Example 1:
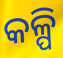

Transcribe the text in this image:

କଳ୍ପି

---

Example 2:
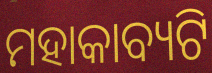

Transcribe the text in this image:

ମହାକାବ୍ୟଟି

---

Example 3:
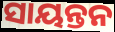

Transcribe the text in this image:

ସାୟନ୍ତନ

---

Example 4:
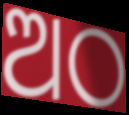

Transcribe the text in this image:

ଅଠ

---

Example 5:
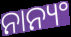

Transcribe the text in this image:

ନାନ୍ୟଂ